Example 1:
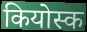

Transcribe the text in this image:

कियोस्क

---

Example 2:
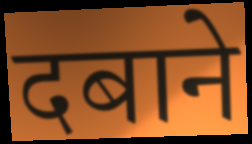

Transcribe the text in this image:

दबाने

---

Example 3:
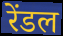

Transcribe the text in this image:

रेंडल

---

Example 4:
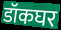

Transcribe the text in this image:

डॉकघर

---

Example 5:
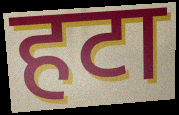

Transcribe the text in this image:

हटा